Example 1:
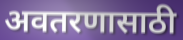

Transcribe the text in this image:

अवतरणासाठी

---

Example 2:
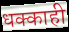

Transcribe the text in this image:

धक्काही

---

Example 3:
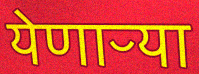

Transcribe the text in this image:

येणाऱ्या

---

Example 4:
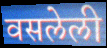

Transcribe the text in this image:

वसलेली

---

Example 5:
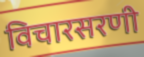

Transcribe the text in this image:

विचारसरणी